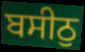
ਬਸੀਠੁ